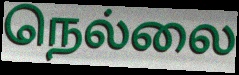
நெல்லை